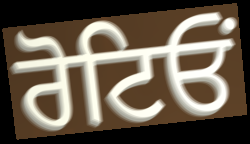
ਰੋਟਿਓਂ